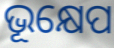
ଭୂକ୍ଷେପ